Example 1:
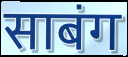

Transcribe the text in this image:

साबंग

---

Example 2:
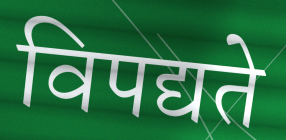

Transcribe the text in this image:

विपद्यते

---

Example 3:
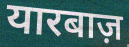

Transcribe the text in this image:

यारबाज़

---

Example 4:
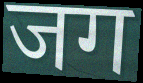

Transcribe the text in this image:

जग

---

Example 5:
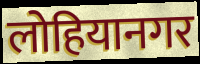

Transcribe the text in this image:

लोहियानगर